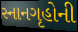
સ્નાનગૃહોની